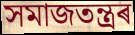
সমাজতন্ত্ৰৰ